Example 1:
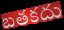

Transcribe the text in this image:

బతకదు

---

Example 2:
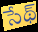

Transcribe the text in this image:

సేథ్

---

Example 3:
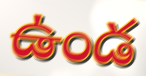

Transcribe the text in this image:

ఉండ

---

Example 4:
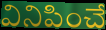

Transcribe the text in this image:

వినిపించే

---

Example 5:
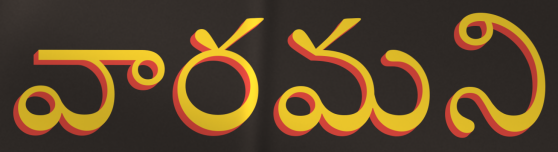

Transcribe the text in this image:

వారమని